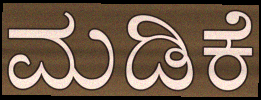
ಮಡಿಕೆ